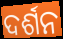
ଦର୍ଶନ